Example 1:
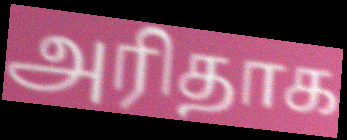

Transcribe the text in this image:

அரிதாக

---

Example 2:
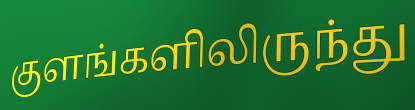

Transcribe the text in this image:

குளங்களிலிருந்து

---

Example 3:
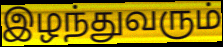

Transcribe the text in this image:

இழந்துவரும்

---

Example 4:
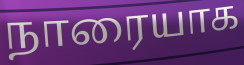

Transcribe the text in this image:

நாரையாக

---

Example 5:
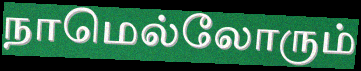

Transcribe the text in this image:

நாமெல்லோரும்